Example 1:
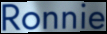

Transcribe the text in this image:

Ronnie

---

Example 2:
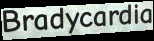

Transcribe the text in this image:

Bradycardia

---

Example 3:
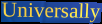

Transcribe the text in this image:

Universally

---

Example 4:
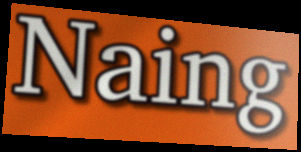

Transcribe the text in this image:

Naing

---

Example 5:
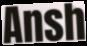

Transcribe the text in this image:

Ansh